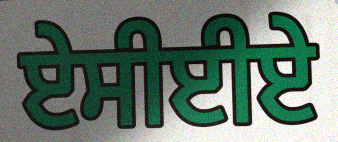
ਏਸੀਈਏ